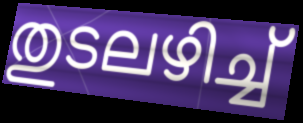
തുടലഴിച്ച്